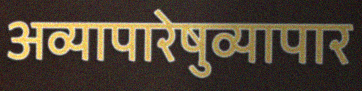
अव्यापारेषुव्यापार